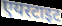
एयरटाइट